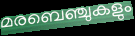
മരബെഞ്ചുകളും